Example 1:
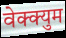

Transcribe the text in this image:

वेक्क्युम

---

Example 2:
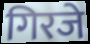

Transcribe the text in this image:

गिरजे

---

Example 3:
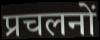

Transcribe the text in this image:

प्रचलनों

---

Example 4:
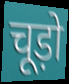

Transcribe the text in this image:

चूड़ो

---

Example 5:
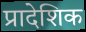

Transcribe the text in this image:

प्रादेशिक